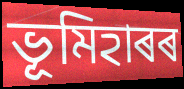
ভূমিহাৰৰ